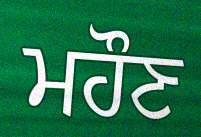
ਮਹੌਣ